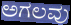
ಅಗಲವು